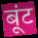
बूंट